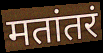
मतांतरं